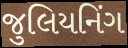
જુલિયનિંગ